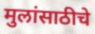
मुलांसाठीचे